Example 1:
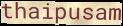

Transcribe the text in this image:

thaipusam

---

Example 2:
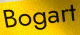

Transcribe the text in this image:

Bogart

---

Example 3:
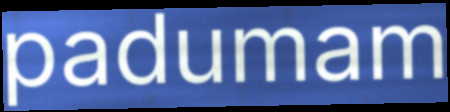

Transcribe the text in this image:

padumam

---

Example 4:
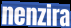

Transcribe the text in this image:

nenzira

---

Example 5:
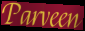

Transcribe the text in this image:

Parveen